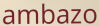
ambazo